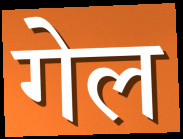
गेल